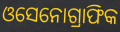
ଓସେନୋଗ୍ରାଫିକ